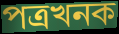
পত্ৰখনক